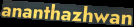
ananthazhwan